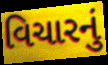
વિચારનું